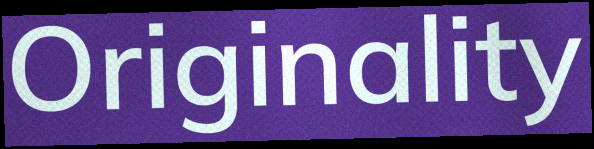
Originality